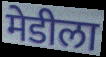
मेडीला